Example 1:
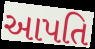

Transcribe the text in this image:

આપતિ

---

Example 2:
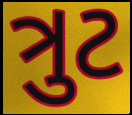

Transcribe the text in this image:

ત્રુટ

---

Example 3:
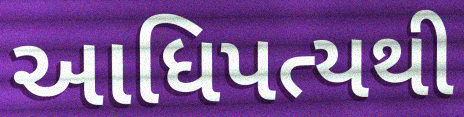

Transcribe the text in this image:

આધિપત્યથી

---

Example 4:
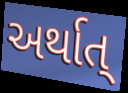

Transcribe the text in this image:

અર્થાત્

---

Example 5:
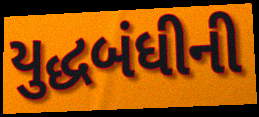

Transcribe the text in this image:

યુદ્ધબંધીની